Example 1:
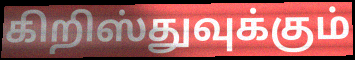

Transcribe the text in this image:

கிறிஸ்துவுக்கும்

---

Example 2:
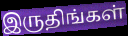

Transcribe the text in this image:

இருதிங்கள்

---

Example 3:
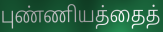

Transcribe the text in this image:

புண்ணியத்தைத்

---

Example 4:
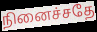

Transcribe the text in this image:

நினைச்சதே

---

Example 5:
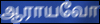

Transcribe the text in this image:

ஆராயவோ